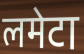
लमेटा